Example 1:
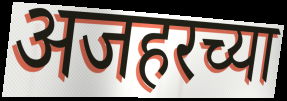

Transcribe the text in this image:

अजहरच्या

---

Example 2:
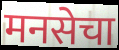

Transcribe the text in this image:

मनसेचा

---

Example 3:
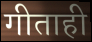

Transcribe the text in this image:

गीताही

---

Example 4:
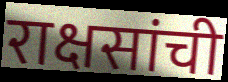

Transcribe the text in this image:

राक्षसांची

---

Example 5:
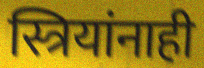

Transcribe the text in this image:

स्त्रियांनाही